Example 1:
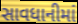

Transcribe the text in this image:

સાવધાનીમાં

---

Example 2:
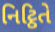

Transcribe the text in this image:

નિટ્ઠિતે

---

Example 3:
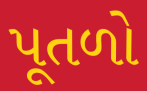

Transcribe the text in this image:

પૂતળો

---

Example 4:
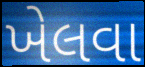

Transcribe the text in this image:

ખેલવા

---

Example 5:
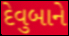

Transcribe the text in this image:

દેવુબાને